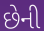
છેની